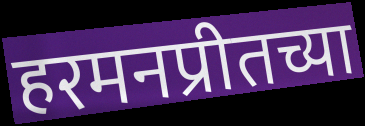
हरमनप्रीतच्या